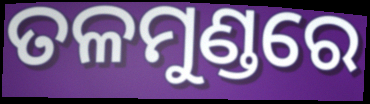
ତଳମୁଣ୍ଡରେ